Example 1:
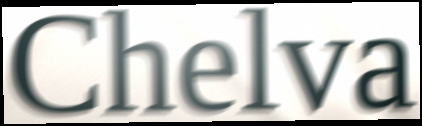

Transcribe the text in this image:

Chelva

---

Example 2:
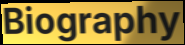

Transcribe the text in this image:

Biography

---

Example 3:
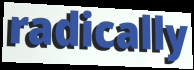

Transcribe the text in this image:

radically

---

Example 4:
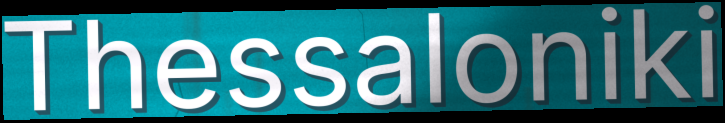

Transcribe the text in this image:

Thessaloniki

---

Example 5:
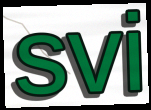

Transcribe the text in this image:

svi